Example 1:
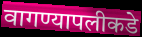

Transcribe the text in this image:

वागण्यापलीकडे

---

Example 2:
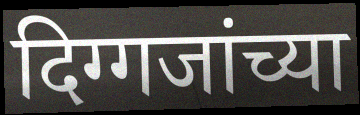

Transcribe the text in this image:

दिग्गजांच्या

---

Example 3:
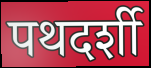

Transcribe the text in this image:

पथदर्शी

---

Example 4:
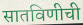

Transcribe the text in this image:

सातविणीची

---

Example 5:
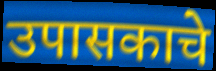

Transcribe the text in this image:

उपासकाचे